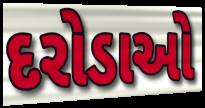
દરોડાઓ